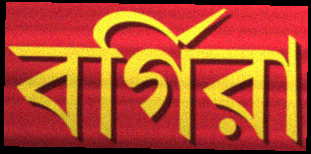
বর্গিরা